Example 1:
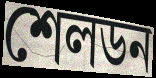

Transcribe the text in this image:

শেলডন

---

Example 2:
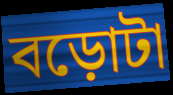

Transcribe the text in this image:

বড়োটা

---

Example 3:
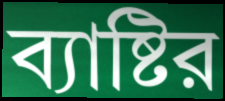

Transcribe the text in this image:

ব্যাষ্টির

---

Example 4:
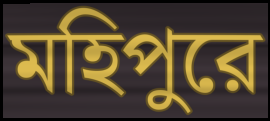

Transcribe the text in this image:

মহিপুরে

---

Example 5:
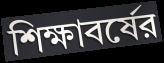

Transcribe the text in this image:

শিক্ষাবর্ষের